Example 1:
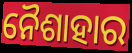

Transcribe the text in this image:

ନୈଶାହାର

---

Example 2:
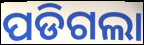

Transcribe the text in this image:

ପଡିଗଲା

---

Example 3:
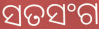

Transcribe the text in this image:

ସତସଂଗ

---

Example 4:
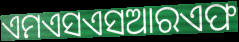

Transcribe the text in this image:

ଏମଏସଏସଆରଏଫ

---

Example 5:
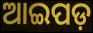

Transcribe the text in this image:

ଆଇପଡ଼